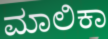
ಮಾಲಿಕಾ